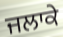
ਜਲਾਕੇ